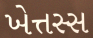
ખેત્તસ્સ